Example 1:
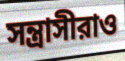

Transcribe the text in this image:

সন্ত্রাসীরাও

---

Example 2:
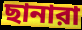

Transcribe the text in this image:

ছানারা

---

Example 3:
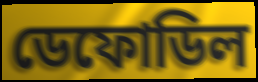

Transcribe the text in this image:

ডেফোডিল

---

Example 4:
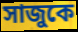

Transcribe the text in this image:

সাজুকে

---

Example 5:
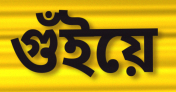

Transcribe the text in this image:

গুঁইয়ে